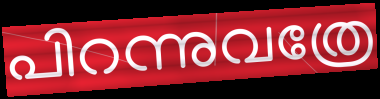
പിറന്നുവത്രേ